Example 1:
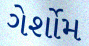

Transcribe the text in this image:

ગેર્શોમ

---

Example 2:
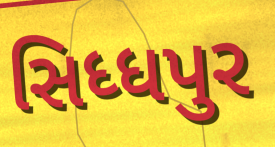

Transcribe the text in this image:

સિધ્ધપુર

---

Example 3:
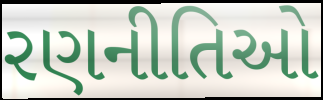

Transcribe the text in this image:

રણનીતિઓ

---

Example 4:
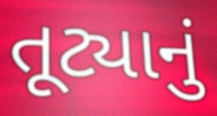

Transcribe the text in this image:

તૂટ્યાનું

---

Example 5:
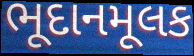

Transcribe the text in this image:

ભૂદાનમૂલક